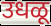
उधळू